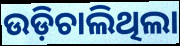
ଉଡ଼ିଚାଲିଥିଲା